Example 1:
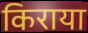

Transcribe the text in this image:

किराया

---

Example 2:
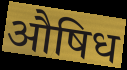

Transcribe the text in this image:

औषिध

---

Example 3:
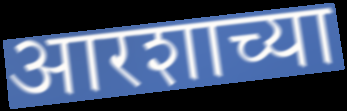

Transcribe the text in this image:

आरशाच्या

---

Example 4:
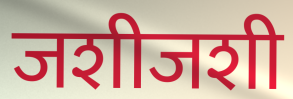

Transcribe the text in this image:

जशीजशी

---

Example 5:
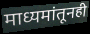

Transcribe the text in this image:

माध्यमांतूनही